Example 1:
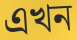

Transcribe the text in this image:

এখন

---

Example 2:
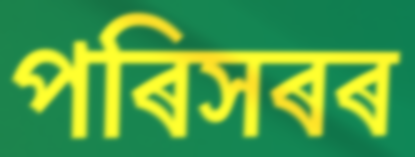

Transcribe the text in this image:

পৰিসৰৰ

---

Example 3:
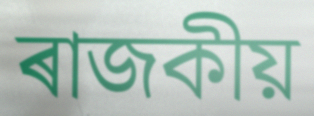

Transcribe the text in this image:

ৰাজকীয়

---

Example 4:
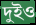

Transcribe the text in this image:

দুইও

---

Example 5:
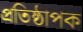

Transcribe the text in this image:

প্ৰতিষ্ঠাপক